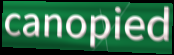
canopied